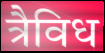
त्रैविध